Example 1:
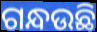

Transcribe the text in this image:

ଗନ୍ଧଉଛି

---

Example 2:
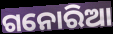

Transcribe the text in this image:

ଗନୋରିଆ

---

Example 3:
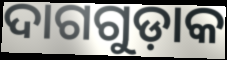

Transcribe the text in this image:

ଦାଗଗୁଡ଼ାକ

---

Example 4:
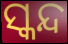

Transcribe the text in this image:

ସ୍କନ୍ଦ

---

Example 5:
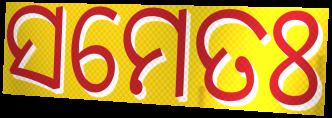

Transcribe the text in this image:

ସମେତଃ